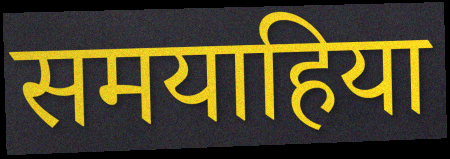
समयाहिया